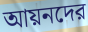
আয়নদের